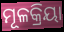
ମୂଳକ୍ରିୟା